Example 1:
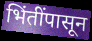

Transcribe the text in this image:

भिंतींपासून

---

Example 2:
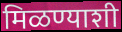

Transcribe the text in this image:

मिळण्याशी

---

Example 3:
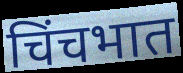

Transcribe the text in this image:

चिंचभात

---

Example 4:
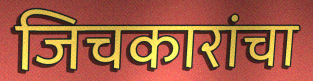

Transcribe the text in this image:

जिचकारांचा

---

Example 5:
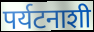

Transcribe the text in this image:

पर्यटनाशी